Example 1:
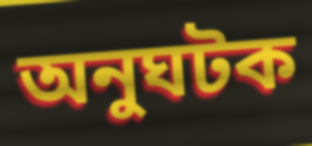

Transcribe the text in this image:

অনুঘটক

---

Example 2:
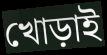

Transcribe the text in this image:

খোড়াই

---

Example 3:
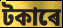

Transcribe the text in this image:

টকাৰে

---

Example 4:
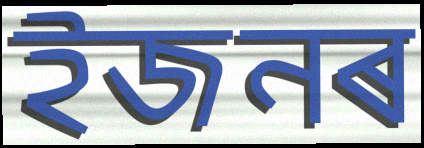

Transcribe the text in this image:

ইজনৰ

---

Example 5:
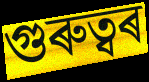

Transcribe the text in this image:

গুৰুত্বৰ